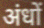
अंधों